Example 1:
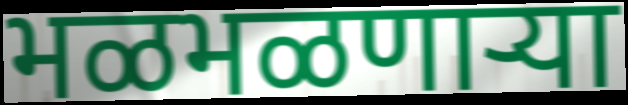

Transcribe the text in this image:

भळभळणाऱ्या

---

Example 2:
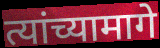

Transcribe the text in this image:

त्यांच्यामागे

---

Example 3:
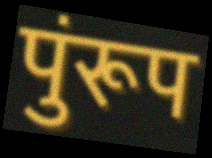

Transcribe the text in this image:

पुंरूप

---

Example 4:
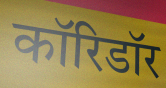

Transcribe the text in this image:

कॉरिडॉर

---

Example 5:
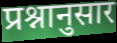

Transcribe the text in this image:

प्रश्नानुसार